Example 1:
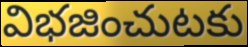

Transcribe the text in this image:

విభజించుటకు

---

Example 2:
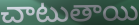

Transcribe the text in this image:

చాటుతాయి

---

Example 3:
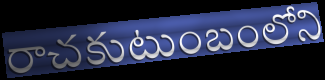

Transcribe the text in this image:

రాచకుటుంబంలోని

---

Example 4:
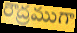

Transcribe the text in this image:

రౌద్రముగా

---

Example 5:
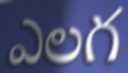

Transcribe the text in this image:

ఎలగ